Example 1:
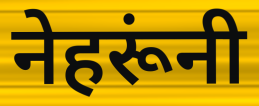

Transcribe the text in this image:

नेहरूंनी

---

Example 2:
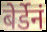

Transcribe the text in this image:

बेर्डेनं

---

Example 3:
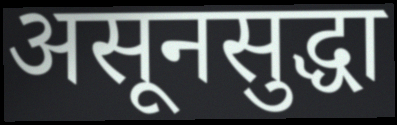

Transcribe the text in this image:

असूनसुद्धा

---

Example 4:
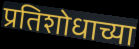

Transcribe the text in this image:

प्रतिशोधाच्या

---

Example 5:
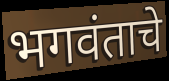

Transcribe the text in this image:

भगवंताचे